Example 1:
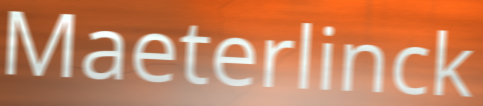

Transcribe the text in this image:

Maeterlinck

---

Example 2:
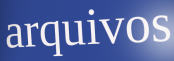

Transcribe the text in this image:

arquivos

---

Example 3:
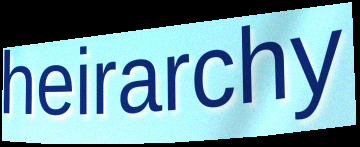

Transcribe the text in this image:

heirarchy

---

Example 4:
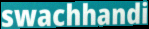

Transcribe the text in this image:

swachhandi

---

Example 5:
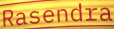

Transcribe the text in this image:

Rasendra